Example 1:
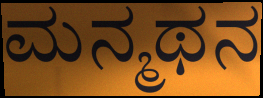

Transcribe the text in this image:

ಮನ್ಮಥನ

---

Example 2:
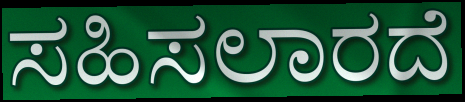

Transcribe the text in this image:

ಸಹಿಸಲಾರದೆ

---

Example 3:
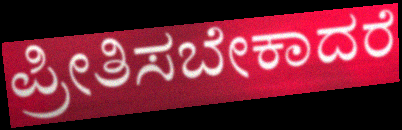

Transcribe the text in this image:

ಪ್ರೀತಿಸಬೇಕಾದರೆ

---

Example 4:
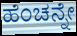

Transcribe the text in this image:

ಹೆಂಚನ್ನೇ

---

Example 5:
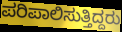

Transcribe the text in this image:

ಪರಿಪಾಲಿಸುತ್ತಿದ್ದರು